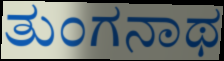
ತುಂಗನಾಥ